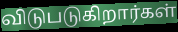
விடுபடுகிறார்கள்